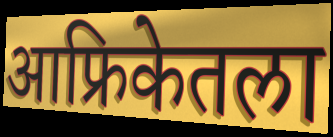
आफ्रिकेतला